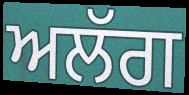
ਅਲੱਗ